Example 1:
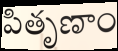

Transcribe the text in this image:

పితృణాం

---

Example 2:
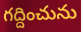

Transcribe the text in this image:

గద్దించును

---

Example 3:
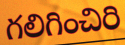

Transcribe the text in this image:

గలిగించిరి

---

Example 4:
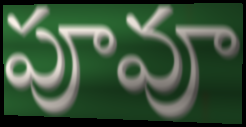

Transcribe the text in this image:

పూవూ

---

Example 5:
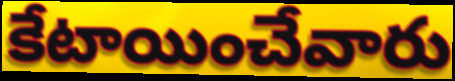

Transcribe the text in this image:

కేటాయించేవారు